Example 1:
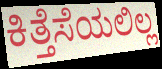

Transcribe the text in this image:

ಕಿತ್ತೆಸೆಯಲಿಲ್ಲ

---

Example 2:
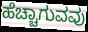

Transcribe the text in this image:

ಹೆಚ್ಚಾಗುವವು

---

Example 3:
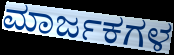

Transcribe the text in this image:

ಮಾರ್ಜಕಗಳ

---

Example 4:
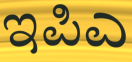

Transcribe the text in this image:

ಇಪಿಎ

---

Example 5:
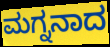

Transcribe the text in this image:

ಮಗ್ನನಾದ